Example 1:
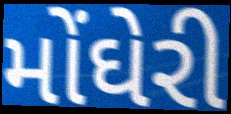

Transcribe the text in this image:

મોંઘેરી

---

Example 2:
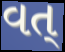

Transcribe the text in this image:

વત્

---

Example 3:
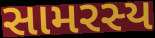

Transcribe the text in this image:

સામરસ્ય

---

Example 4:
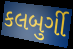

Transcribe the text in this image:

કલબુર્ગી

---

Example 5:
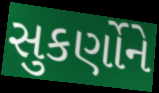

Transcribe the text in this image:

સુકર્ણોને